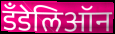
डँडेलिऑन